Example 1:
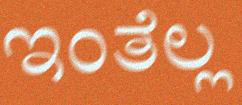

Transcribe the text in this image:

ಇಂತೆಲ್ಲ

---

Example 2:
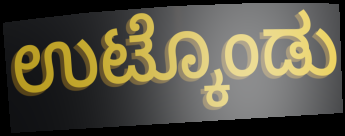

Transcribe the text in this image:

ಉಟ್ಕೊಂಡು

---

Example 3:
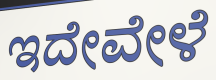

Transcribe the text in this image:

ಇದೇವೇಳೆ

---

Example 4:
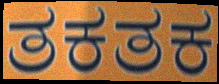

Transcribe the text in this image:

ತಕತಕ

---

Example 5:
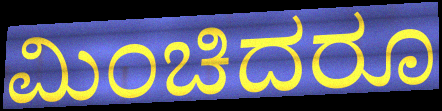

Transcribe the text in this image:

ಮಿಂಚಿದರೂ